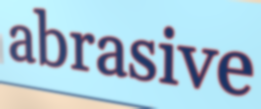
abrasive